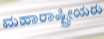
ಮಹಾರಾಷ್ಟ್ರೀಯರು